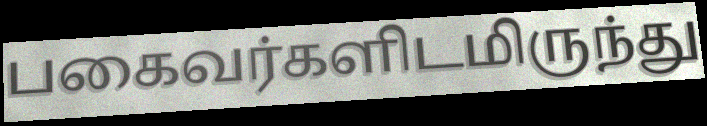
பகைவர்களிடமிருந்து